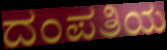
ದಂಪತಿಯ